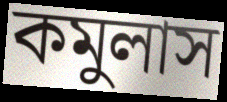
কমুলাস